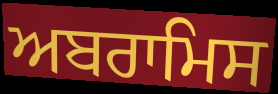
ਅਬਰਾਮਿਸ